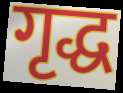
गृद्ध